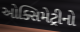
ઓક્સિમેટ્રીનો